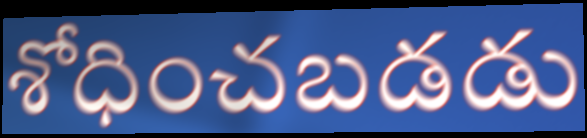
శోధించబడడు